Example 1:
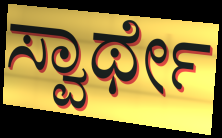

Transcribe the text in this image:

ಸ್ವಾರ್ಥೇ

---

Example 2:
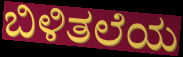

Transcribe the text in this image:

ಬಿಳಿತಲೆಯ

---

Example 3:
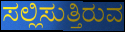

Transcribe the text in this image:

ಸಲ್ಲಿಸುತ್ತಿರುವ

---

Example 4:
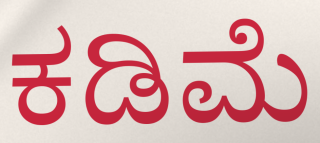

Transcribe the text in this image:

ಕಡಿಮೆ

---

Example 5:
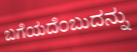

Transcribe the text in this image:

ಬಗೆಯದೆಂಬುದನ್ನು